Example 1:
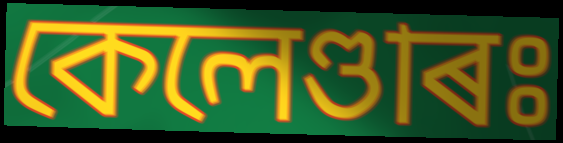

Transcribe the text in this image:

কেলেণ্ডাৰঃ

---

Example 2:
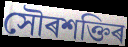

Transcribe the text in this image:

সৌৰশক্তিৰ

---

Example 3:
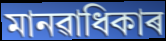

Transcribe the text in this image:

মানৱাধিকাৰ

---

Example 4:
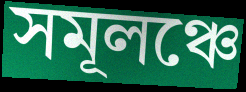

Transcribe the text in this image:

সমূলঞ্চে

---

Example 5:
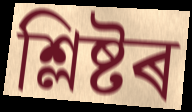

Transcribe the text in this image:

শ্লিষ্টৰ